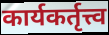
कार्यकर्तृत्त्व